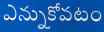
ఎన్నుకోవటం